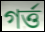
গর্ত্ত